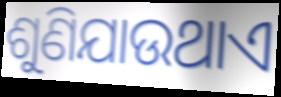
ଶୁଣିଯାଉଥାଏ